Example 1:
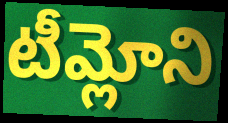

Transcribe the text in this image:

టీమ్లోని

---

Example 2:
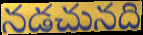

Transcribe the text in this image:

నడచునది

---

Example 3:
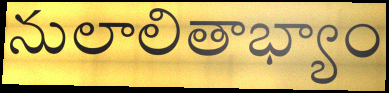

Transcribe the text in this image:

నులాలితాభ్యాం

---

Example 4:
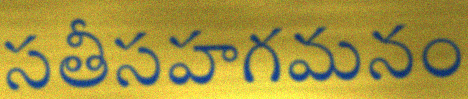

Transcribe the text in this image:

సతీసహగమనం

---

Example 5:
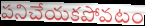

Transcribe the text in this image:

పనిచేయకపోవటం